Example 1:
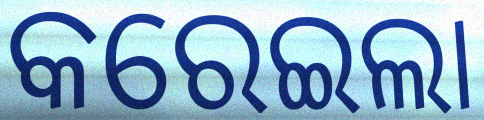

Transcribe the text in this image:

କରେଇଲା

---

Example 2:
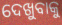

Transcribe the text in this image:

ଦେଖୁବାକୁ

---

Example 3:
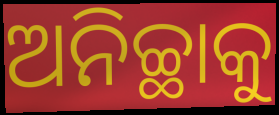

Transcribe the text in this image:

ଅନିଚ୍ଛାକୁ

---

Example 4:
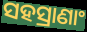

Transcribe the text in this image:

ସହସ୍ରାଣାଂ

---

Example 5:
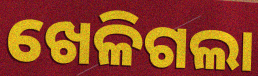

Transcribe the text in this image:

ଖେଳିଗଲା